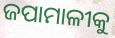
ଜପାମାଳୀକୁ